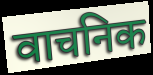
वाचनिक